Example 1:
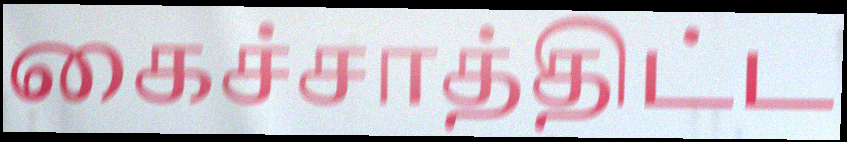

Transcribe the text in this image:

கைச்சாத்திட்ட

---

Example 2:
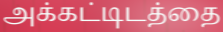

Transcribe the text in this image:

அக்கட்டிடத்தை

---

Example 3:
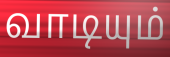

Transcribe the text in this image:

வாடியும்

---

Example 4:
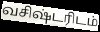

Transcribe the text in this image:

வசிஷ்டரிடம்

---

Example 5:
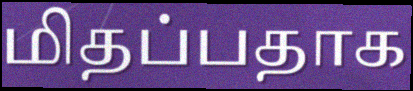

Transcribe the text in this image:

மிதப்பதாக